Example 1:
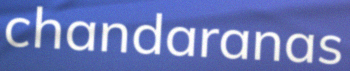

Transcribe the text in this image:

chandaranas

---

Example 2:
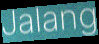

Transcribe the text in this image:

Jalang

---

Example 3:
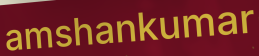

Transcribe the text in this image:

amshankumar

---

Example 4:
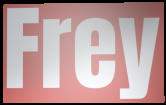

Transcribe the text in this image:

Frey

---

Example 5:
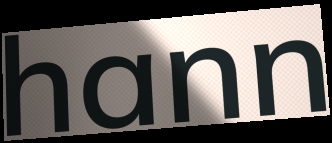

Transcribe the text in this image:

hann